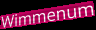
Wimmenum